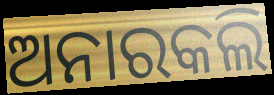
ଅନାରକଲି